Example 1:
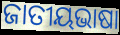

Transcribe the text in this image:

ଜାତୀୟଭାଷା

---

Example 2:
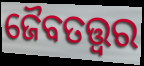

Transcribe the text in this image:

ଜୈବତତ୍ତ୍ୱର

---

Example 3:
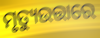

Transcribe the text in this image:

ମୃତ୍ୟୁଉତ୍ତାରେ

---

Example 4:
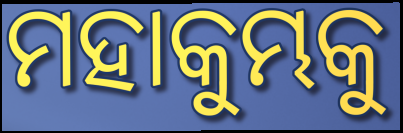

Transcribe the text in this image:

ମହାକୁମ୍ଭକୁ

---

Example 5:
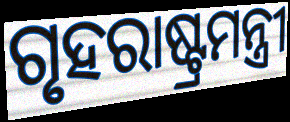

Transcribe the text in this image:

ଗୃହରାଷ୍ଟ୍ରମନ୍ତ୍ରୀ